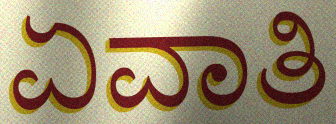
ಏವಾತಿ